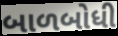
બાળબોધી